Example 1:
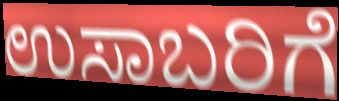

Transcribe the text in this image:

ಉಸಾಬರಿಗೆ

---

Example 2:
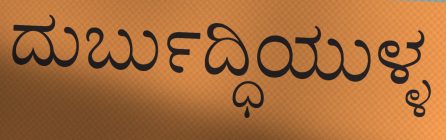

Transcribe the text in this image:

ದುರ್ಬುದ್ಧಿಯುಳ್ಳ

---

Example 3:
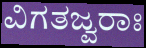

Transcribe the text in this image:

ವಿಗತಜ್ವರಾಃ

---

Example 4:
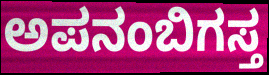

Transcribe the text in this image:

ಅಪನಂಬಿಗಸ್ತ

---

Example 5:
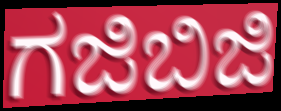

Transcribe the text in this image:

ಗಜಿಬಿಜಿ